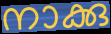
നാക്കു